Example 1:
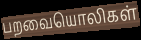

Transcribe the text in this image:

பறவையொலிகள்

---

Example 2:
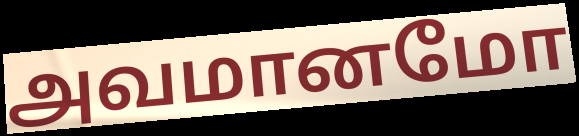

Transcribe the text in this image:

அவமானமோ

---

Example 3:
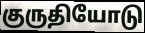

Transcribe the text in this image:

குருதியோடு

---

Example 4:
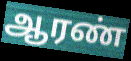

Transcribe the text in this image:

ஆரண்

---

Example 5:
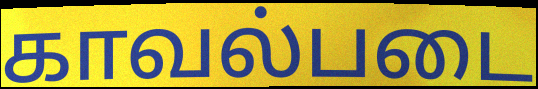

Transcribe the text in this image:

காவல்படை